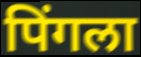
पिंगला